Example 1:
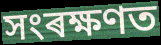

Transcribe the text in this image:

সংৰক্ষণত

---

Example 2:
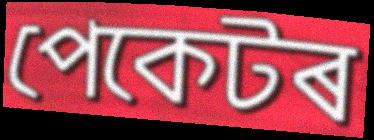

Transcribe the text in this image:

পেকেটৰ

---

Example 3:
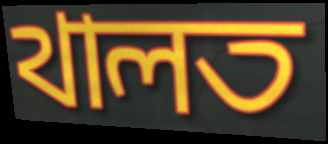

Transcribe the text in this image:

থালত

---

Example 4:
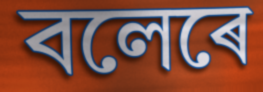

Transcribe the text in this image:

বলেৰে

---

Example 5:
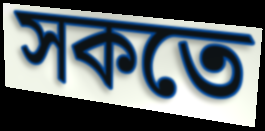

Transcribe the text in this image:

সকতে